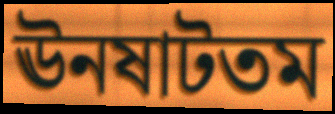
ঊনষাটতম